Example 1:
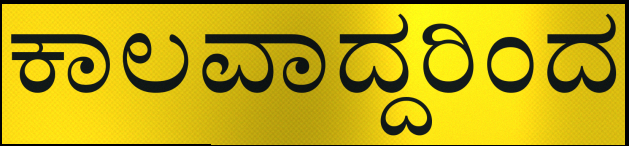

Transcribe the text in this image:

ಕಾಲವಾದ್ದರಿಂದ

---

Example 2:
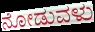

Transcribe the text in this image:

ನೋಡುವಳು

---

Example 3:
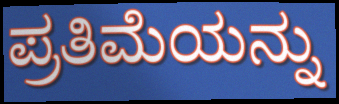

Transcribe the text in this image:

ಪ್ರತಿಮೆಯನ್ನು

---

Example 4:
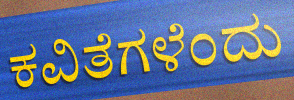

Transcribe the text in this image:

ಕವಿತೆಗಳೆಂದು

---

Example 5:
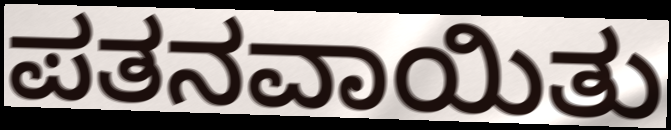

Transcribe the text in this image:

ಪತನವಾಯಿತು